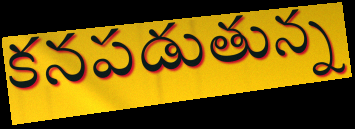
కనపడుతున్న